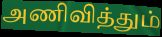
அணிவித்தும்